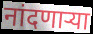
नांदणाऱ्या